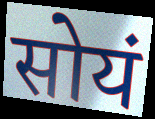
सोयं